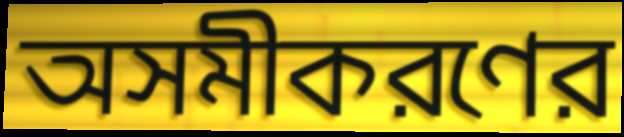
অসমীকরণের